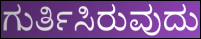
ಗುರ್ತಿಸಿರುವುದು